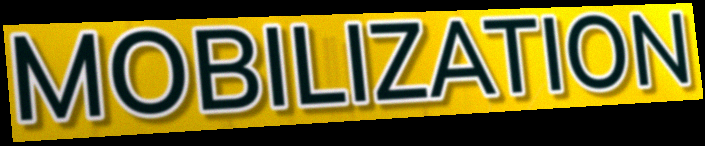
MOBILIZATION